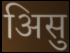
अिसु